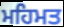
ਮਹਿਮਤ